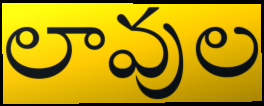
లావుల